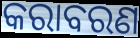
କରାବରଣ